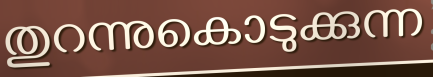
തുറന്നുകൊടുക്കുന്ന